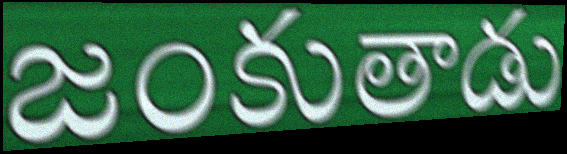
జంకుతాడు